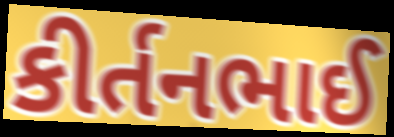
કીર્તનભાઈ